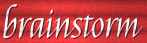
brainstorm